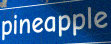
pineapple